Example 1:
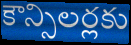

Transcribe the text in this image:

కౌన్సిలర్లకు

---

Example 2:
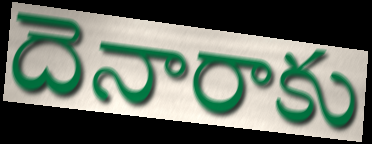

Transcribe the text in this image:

దెనారాకు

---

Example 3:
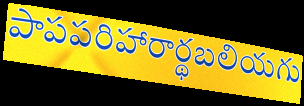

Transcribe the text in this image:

పాపపరిహారార్థబలియగు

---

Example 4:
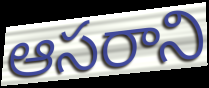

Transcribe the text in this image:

ఆసరాని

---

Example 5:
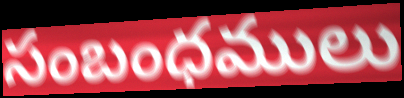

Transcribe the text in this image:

సంబంధములు